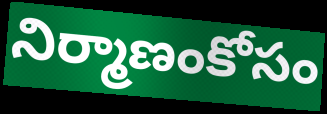
నిర్మాణంకోసం